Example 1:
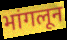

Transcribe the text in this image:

भांगलून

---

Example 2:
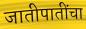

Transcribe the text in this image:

जातीपातींचा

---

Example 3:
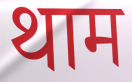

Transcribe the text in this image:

थाम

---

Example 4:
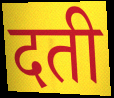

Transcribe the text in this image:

दती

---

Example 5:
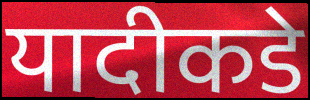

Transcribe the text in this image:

यादीकडे